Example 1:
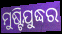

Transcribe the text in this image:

ମୁଷ୍ଟିଯୁଦ୍ଧର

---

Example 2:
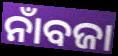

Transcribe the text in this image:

ନାଁବଜା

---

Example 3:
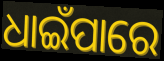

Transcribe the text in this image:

ଧାଇଁପାରେ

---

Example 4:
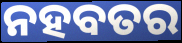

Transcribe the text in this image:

ନହବତର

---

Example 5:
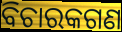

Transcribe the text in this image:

ବିଚାରକଗଣ